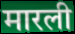
मारली